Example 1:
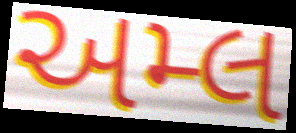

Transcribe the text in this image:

અમ્લ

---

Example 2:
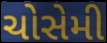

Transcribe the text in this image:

ચોસેમી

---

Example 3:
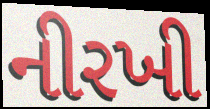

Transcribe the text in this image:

નીરખી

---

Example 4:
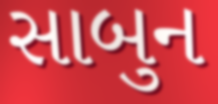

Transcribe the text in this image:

સાબુન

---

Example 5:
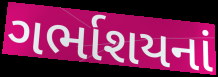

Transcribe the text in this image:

ગર્ભાશયનાં